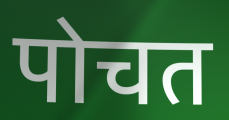
पोचत